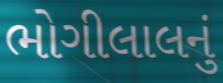
ભોગીલાલનું